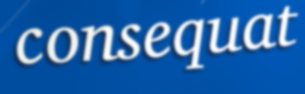
consequat